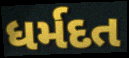
ધર્મદત